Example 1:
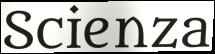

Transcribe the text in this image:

Scienza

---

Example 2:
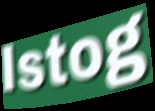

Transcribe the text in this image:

Istog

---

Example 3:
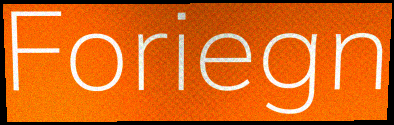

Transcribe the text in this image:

Foriegn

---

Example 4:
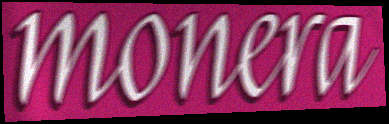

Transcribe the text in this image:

monera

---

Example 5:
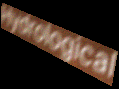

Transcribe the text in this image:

Hydrological